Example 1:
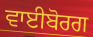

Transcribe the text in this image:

ਵਾਈਬੋਰਗ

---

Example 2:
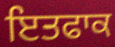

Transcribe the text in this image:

ਇਤਫਾਕ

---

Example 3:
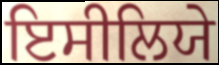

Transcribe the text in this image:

ਇਸੀਲਿਯੇ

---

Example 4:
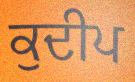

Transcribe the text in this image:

ਕੁਦੀਪ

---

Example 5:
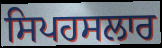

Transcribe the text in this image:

ਸਿਪਹਸਲਾਰ